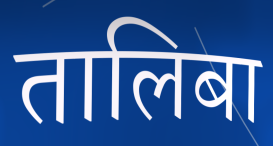
तालिबा